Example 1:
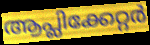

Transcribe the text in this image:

ആപ്ലിക്കേറ്റർ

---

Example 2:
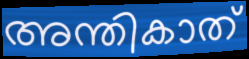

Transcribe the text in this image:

അന്തികാത്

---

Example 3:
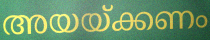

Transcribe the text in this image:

അയയ്ക്കണം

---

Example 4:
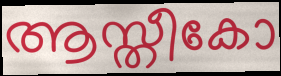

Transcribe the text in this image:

ആസ്തീകോ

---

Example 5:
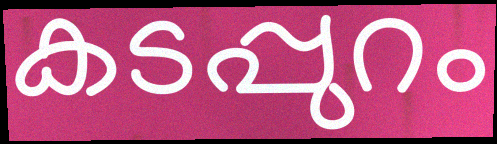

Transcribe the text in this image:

കടപ്പുറം